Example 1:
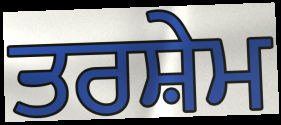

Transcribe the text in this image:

ਤਰਸ਼ੇਮ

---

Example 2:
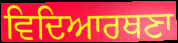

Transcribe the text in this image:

ਵਿਦਿਆਰਥਣਾ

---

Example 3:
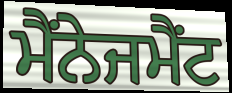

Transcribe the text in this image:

ਮੈਂਨੇਜਮੈਂਟ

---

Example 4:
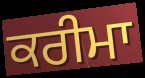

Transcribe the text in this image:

ਕਰੀਮਾ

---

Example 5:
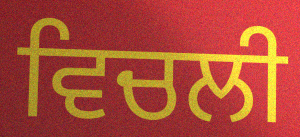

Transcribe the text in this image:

ਵਿਚਲੀ